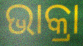
ଭାକ୍ରା